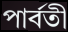
পার্বতী